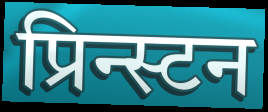
प्रिन्स्टन